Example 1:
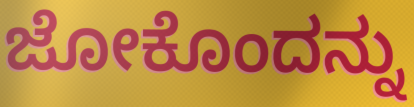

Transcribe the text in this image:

ಜೋಕೊಂದನ್ನು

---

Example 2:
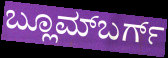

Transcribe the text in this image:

ಬ್ಲೂಮ್‌ಬರ್ಗ್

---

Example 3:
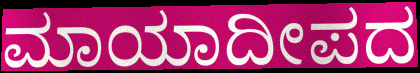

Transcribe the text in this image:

ಮಾಯಾದೀಪದ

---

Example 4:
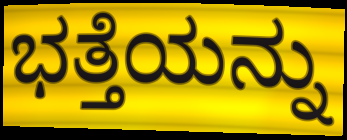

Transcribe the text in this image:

ಭತ್ತೆಯನ್ನು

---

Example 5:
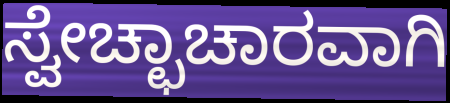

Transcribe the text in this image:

ಸ್ವೇಚ್ಛಾಚಾರವಾಗಿ